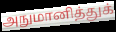
அநுமானித்துக்